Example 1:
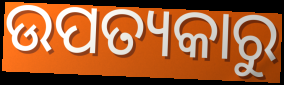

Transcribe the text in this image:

ଉପତ୍ୟକାରୁ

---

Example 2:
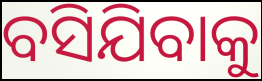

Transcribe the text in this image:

ବସିଯିବାକୁ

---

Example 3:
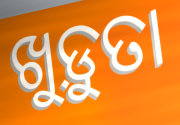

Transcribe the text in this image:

ଖୁଡ଼ୁତା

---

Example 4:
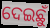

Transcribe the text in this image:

ଦେଇଛୁଁ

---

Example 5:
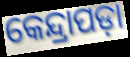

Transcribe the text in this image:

କେନ୍ଦ୍ରାପଡ଼ା